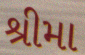
શ્રીમા